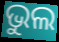
ଭୁଲ